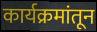
कार्यक्रमांतून